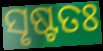
ସୃଷ୍ଟତଃ